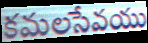
కమలసేవయు